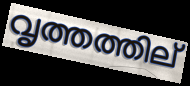
വൃത്തത്തില്